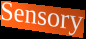
Sensory